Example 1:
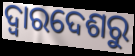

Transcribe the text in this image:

ଦ୍ଵାରଦେଶରୁ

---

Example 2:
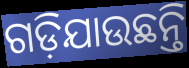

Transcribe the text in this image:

ଗଡ଼ିଯାଉଛନ୍ତି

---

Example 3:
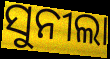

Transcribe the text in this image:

ସୁନୀଲା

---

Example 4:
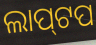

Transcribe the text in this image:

ଲାପ୍‌ଟପ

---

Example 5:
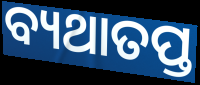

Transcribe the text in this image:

ବ୍ୟଥାତପ୍ତ